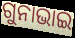
ଗୁନାଭାଇ